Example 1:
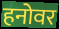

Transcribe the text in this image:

हनोवर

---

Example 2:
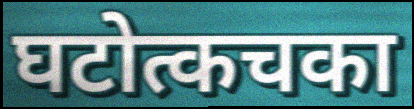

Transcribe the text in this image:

घटोत्कचका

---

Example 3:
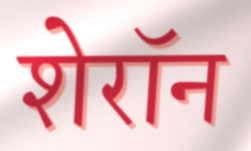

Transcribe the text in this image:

शेरॉन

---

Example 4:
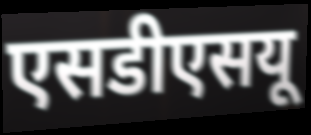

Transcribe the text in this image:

एसडीएसयू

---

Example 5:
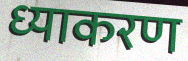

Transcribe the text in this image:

ध्याकरण